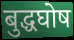
बुद्धघोष